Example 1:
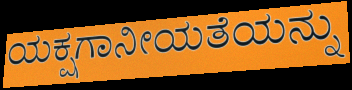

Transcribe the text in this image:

ಯಕ್ಷಗಾನೀಯತೆಯನ್ನು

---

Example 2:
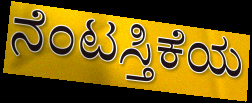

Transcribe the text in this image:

ನೆಂಟಸ್ತಿಕೆಯ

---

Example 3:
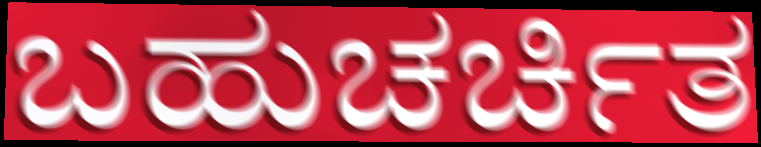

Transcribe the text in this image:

ಬಹುಚರ್ಚಿತ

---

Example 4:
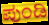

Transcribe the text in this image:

ಪುಂಡಿ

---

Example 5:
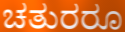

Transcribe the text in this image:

ಚತುರರೂ